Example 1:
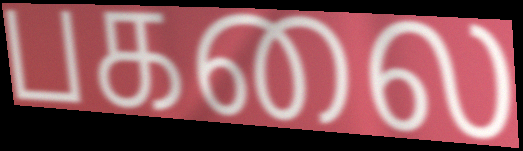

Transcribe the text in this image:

பகலை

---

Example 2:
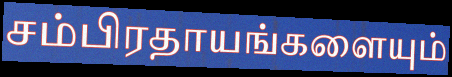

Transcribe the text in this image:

சம்பிரதாயங்களையும்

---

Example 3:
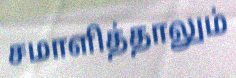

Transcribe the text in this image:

சமாளித்தாலும்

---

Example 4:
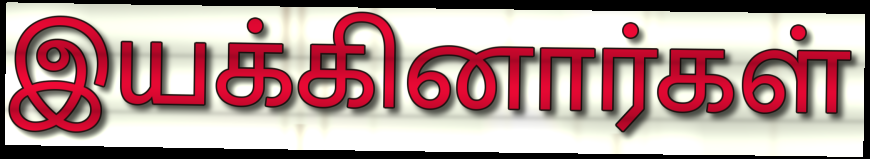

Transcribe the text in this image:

இயக்கினார்கள்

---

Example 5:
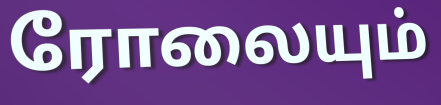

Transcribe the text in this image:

ரோலையும்